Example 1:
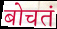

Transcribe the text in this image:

बोचतं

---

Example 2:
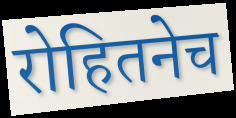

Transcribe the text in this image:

रोहितनेच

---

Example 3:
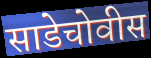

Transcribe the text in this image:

साडेचोवीस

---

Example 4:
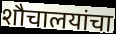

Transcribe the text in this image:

शौचालयांचा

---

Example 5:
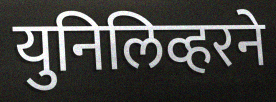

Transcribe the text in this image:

युनिलिव्हरने